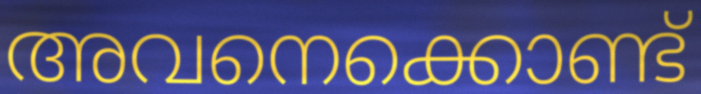
അവനെക്കൊണ്ട്